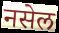
नसेल